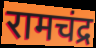
रामचंद्र